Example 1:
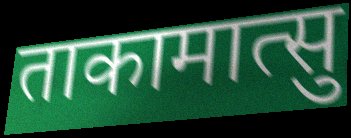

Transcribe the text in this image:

ताकामात्सु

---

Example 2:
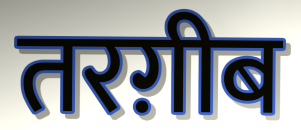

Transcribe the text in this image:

तरग़ीब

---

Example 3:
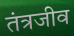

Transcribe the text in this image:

तंत्रजीव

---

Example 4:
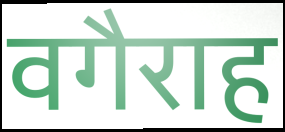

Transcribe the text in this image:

वगैराह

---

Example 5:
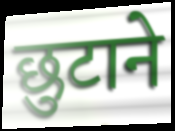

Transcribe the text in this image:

छुटाने